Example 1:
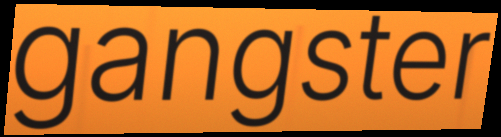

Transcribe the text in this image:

gangster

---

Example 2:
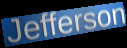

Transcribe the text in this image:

Jefferson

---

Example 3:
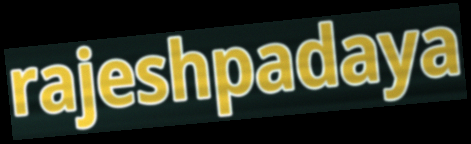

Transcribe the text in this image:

rajeshpadaya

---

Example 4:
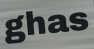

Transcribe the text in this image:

ghas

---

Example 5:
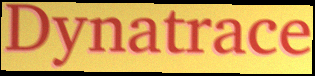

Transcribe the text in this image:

Dynatrace